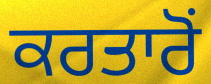
ਕਰਤਾਰੋਂ